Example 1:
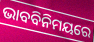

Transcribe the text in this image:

ଭାବବିନିମୟରେ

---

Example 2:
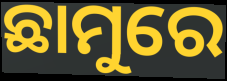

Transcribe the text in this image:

ଛାମୁରେ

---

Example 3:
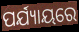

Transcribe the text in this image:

ପର୍ଯ୍ୟାୟରେ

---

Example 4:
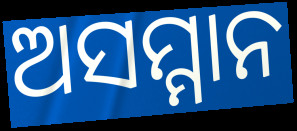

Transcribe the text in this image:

ଅସମ୍ମାନ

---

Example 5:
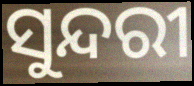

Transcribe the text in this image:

ସୁନ୍ଦରୀ